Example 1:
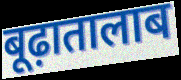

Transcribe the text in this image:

बूढ़ातालाब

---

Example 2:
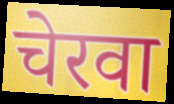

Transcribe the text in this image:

चेरवा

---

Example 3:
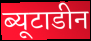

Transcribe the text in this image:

ब्यूटाडीन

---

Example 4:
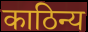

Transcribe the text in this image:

काठिन्य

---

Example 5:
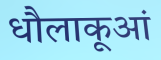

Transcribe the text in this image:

धौलाकूआं